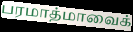
பரமாத்மாவைக்